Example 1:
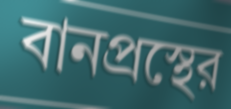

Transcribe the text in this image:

বানপ্রস্থের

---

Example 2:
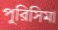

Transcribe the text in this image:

পুরিসিমা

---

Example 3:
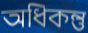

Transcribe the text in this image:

অধিকন্তু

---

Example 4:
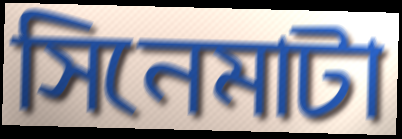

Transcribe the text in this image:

সিনেমাটা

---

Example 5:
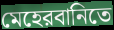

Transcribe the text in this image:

মেহেরবানিতে